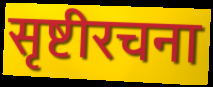
सृष्टीरचना